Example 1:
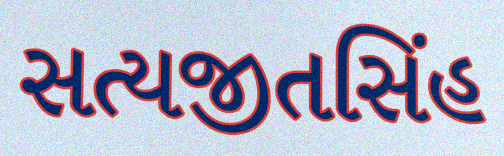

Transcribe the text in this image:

સત્યજીતસિંહ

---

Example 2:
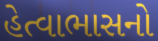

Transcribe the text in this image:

હેત્વાભાસનો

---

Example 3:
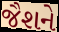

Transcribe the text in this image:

જૈશને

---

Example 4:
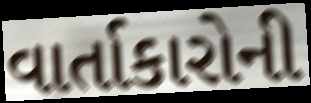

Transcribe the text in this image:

વાર્તાકારોની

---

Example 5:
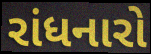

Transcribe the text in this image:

રાંધનારો